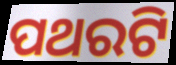
ପଥରଟି